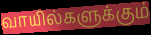
வாயில்களுக்கும்